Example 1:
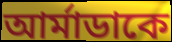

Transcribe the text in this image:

আর্মাডাকে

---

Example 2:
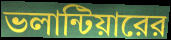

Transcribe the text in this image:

ভলান্টিয়ারের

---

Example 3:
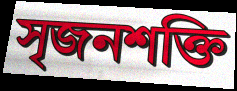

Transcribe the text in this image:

সৃজনশক্তি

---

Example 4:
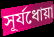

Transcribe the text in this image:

সূর্যধোয়া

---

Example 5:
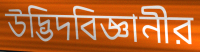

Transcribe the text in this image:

উদ্ভিদবিজ্ঞানীর